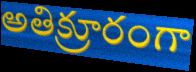
అతిక్రూరంగా